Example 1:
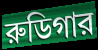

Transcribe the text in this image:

রুডিগার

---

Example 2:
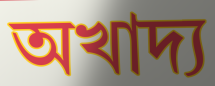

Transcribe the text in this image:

অখাদ্য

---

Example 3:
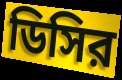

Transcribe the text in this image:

ডিসির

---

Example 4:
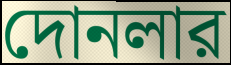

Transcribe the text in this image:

দোনলার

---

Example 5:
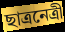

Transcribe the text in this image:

ছাত্রনেত্রী